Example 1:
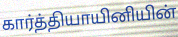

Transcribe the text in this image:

கார்த்தியாயினியின்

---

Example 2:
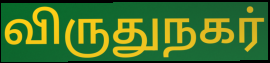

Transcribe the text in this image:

விருதுநகர்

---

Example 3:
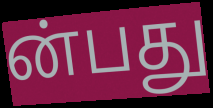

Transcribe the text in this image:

ன்பது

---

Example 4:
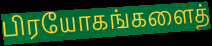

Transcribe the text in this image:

பிரயோகங்களைத்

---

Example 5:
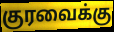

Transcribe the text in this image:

குரவைக்கு